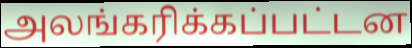
அலங்கரிக்கப்பட்டன